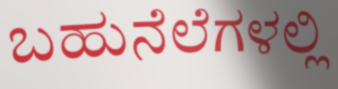
ಬಹುನೆಲೆಗಳಲ್ಲಿ